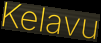
Kelavu